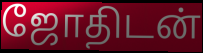
ஜோதிடன்